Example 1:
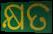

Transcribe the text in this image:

କ୍ଷତ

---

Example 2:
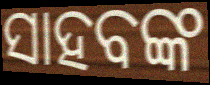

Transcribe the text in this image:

ସାହବଙ୍କ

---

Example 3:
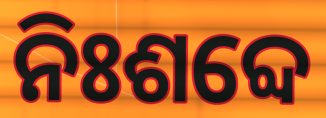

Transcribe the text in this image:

ନିଃଶବ୍ଦେ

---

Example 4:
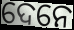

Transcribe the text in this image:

ଦେନେ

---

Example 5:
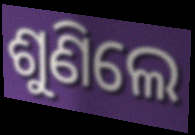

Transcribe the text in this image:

ଶୁଣିଲେ